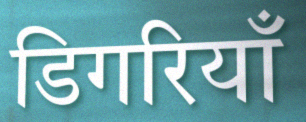
डिगरियाँ